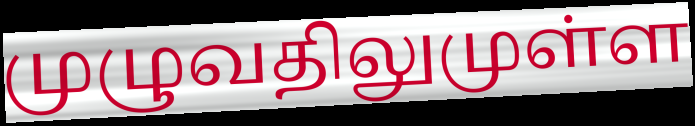
முழுவதிலுமுள்ள